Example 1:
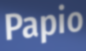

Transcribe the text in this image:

Papio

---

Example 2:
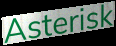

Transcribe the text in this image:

Asterisk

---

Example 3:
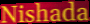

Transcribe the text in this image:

Nishada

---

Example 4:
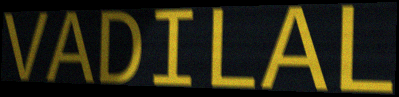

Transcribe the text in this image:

VADILAL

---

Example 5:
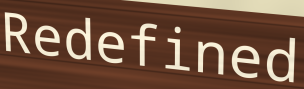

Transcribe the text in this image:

Redefined